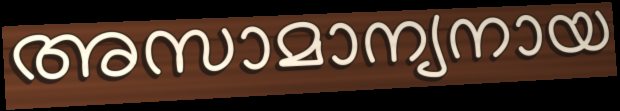
അസാമാന്യനായ